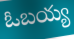
ఓబయ్య